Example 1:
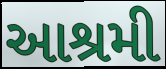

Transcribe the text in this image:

આશ્રમી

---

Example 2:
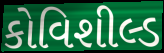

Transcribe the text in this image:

કોવિશીલ્ડ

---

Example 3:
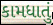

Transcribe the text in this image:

કામધાતું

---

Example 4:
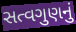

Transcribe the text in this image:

સત્વગુણનું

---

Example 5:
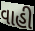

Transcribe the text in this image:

વાહી